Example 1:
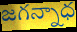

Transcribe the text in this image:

జగన్నాధ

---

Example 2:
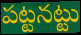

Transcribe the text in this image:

పట్టనట్టు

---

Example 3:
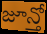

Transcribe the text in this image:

జూన్తో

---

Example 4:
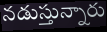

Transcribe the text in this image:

నడుస్తున్నారు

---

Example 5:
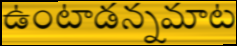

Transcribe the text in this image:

ఉంటాడన్నమాట